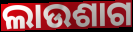
ଲାଉଶାଗ